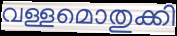
വള്ളമൊതുക്കി